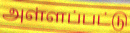
அள்ளப்பட்டு